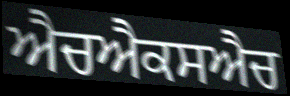
ਐਚਐਕਸਐਚ